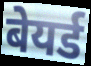
बेयर्ड